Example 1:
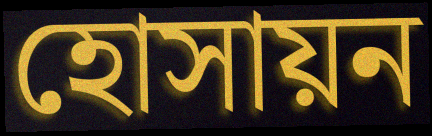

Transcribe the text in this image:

হোসায়ন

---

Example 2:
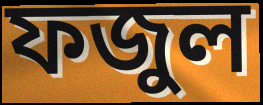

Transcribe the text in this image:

ফজুল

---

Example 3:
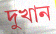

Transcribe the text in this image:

দুখান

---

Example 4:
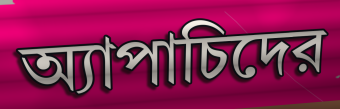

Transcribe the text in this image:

অ্যাপাচিদের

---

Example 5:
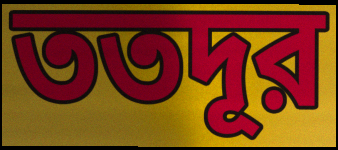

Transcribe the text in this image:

ততদূর